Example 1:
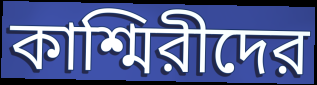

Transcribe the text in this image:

কাশ্মিরীদের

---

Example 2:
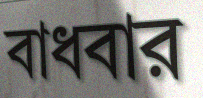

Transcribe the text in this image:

বাধবার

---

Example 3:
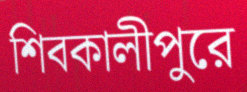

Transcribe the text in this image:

শিবকালীপুরে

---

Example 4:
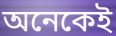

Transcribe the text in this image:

অনেকেই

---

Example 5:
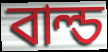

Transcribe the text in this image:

বাল্ড